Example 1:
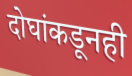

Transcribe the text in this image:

दोघांकडूनही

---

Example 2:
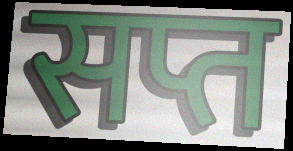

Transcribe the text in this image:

सप्त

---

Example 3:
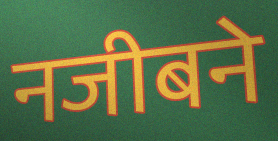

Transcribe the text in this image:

नजीबने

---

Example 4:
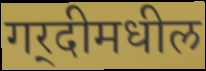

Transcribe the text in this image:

गर्दीमधील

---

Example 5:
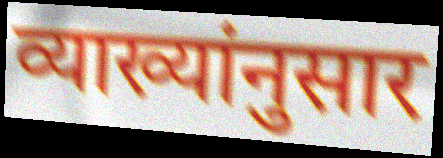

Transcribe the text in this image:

व्याख्यांनुसार